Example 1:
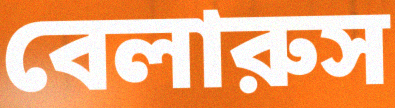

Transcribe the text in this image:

বেলারুস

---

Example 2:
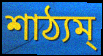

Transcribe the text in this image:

শাঠ্যম্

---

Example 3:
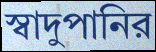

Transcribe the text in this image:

স্বাদুপানির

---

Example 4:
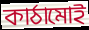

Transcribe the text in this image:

কাঠামোই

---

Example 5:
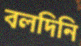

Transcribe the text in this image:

বলদিনি